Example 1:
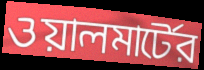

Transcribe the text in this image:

ওয়ালমার্টের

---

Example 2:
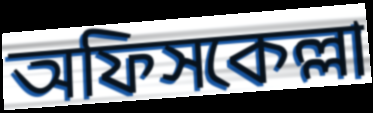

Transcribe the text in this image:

অফিসকেল্লা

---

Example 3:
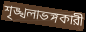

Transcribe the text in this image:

শৃঙ্খলাভঙ্গকারী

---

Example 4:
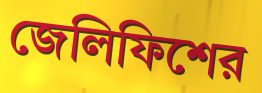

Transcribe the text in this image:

জেলিফিশের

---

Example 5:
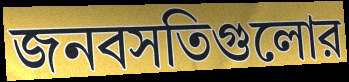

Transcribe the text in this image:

জনবসতিগুলোর